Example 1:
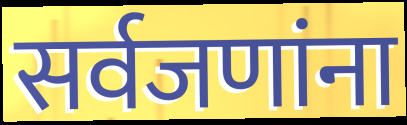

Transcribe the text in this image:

सर्वजणांना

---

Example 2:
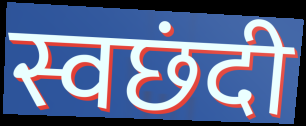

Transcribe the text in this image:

स्वछंदी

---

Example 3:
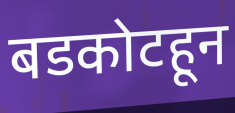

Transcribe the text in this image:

बडकोटहून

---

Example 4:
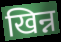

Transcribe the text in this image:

खिन्न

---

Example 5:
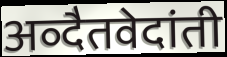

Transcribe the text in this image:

अव्दैतवेदांती